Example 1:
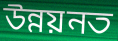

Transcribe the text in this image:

উন্নয়নত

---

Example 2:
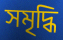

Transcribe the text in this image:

সমৃদ্ধি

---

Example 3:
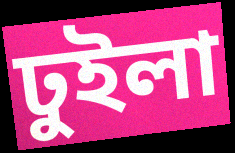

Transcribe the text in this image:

ঢুইলা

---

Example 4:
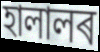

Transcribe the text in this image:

হালালৰ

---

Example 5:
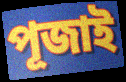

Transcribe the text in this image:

পূজাই